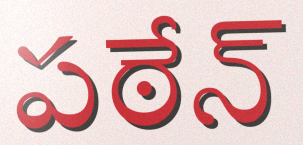
పఠేన్